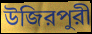
উজিরপুরী